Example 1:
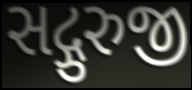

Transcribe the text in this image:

સદ્ગુરુજી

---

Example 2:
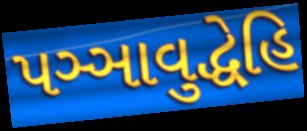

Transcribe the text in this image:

પઞ્ઞાવુદ્ધેહિ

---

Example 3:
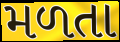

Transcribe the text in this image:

મળતા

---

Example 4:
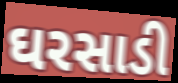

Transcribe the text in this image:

ઘરસાડી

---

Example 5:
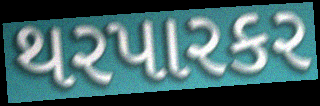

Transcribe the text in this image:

થરપારકર